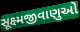
સૂક્ષ્મજીવાણુઓ